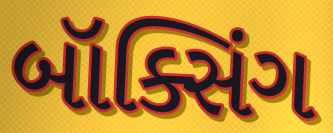
બૉક્સિંગ